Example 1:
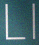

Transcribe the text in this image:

LI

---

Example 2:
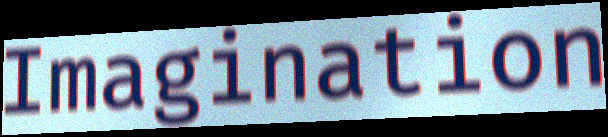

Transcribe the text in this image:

Imagination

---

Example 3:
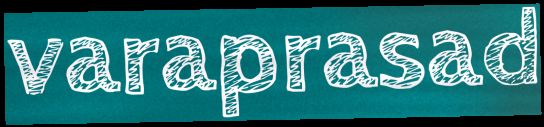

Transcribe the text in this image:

varaprasad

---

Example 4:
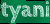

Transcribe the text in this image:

tyani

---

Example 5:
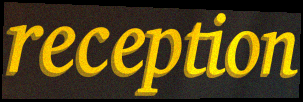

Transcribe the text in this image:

reception